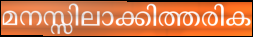
മനസ്സിലാക്കിത്തരിക